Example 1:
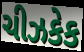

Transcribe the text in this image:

ચીઝકેક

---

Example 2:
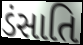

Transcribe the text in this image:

ડંસાતિ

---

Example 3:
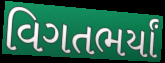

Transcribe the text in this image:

વિગતભર્યાં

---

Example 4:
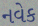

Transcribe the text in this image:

નવેક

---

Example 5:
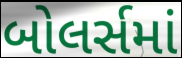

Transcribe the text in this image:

બોલર્સમાં